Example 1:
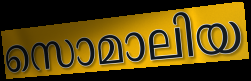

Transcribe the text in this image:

സൊമാലിയ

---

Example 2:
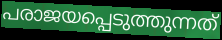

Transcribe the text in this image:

പരാജയപ്പെടുത്തുന്നത്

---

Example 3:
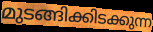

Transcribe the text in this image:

മുടങ്ങിക്കിടക്കുന്ന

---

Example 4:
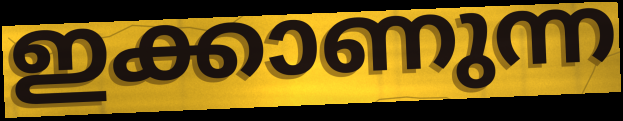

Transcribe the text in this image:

ഇക്കാണുന്ന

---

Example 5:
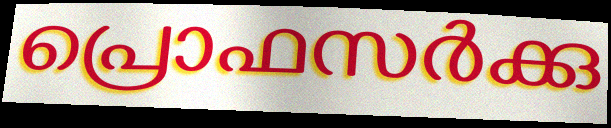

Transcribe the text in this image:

പ്രൊഫസർക്കു